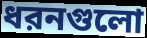
ধরনগুলো